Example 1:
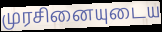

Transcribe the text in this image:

முரசினையுடைய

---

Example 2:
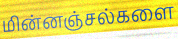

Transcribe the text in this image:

மின்னஞ்சல்களை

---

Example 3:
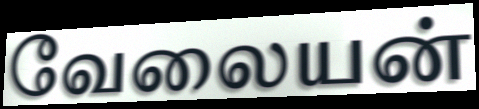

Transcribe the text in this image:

வேலையன்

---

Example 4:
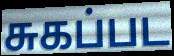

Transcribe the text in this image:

சுகப்பட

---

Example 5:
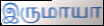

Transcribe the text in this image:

இருமாயா